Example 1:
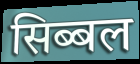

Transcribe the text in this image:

सिब्बल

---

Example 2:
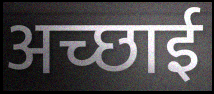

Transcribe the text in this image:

अच्छाई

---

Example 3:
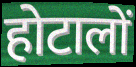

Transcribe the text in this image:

होटालों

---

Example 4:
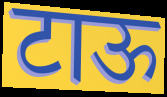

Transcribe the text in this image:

टाऊ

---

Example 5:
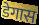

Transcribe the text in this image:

डेगास